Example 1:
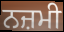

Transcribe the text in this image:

ਨਜ਼ਮੀ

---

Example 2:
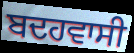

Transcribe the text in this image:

ਬਦਹਵਾਸੀ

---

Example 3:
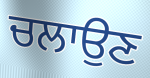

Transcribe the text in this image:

ਚਲਾਉਣ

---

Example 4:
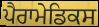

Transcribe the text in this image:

ਪੈਰਾਮੇਡਿਕਸ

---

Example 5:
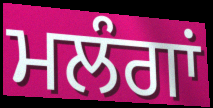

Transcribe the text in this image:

ਮਲੰਗਾਂ